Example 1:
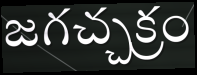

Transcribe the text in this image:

జగచ్చక్రం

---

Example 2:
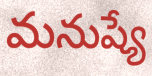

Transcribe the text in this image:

మనుష్యే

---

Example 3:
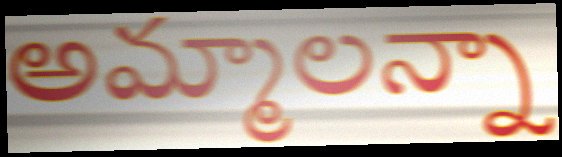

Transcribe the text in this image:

అమ్మాలన్నా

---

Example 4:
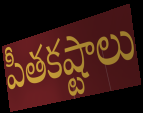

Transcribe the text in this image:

పీతకష్టాలు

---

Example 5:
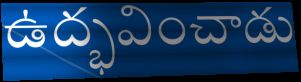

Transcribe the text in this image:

ఉద్భవించాడు